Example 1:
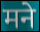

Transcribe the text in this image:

मने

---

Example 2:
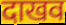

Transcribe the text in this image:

दाखव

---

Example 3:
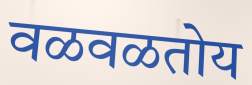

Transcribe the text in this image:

वळवळतोय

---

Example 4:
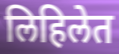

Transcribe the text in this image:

लिहिलेत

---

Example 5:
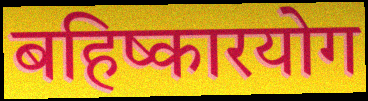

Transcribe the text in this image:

बहिष्कारयोग